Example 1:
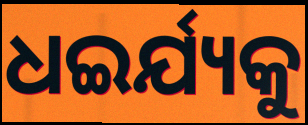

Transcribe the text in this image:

ଧଇର୍ଯ୍ୟକୁ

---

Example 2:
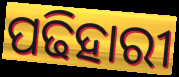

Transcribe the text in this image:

ପଢିହାରୀ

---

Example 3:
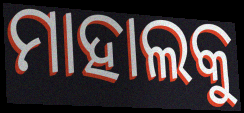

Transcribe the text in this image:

ମାହାଲକୁ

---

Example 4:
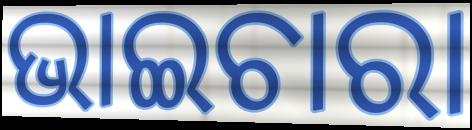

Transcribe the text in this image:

ଭାଇଚାରା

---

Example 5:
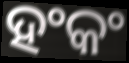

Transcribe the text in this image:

ହଂକଂ